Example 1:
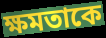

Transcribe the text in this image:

ক্ষমতাকে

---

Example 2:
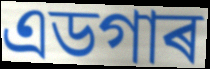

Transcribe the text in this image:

এডগাৰ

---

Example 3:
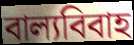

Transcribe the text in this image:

বাল্যবিবাহ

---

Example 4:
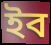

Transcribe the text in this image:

ইব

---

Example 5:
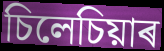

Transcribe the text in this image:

চিলেচিয়াৰ